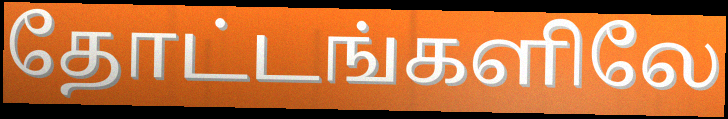
தோட்டங்களிலே